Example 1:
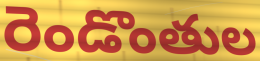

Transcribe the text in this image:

రెండొంతుల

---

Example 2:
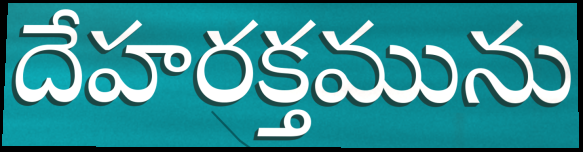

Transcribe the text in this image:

దేహరక్తమును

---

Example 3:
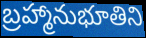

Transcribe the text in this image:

బ్రహ్మానుభూతిని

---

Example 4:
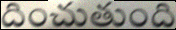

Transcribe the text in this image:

దించుతుంది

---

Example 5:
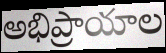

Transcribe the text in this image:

అభిప్రాయాల